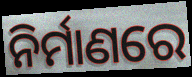
ନିର୍ମାଣରେ